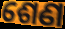
ଶେଣ